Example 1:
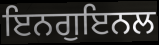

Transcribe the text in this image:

ਇਨਗੁਇਨਲ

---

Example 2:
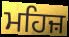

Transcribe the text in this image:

ਮਹਿਜ਼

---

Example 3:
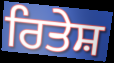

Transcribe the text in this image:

ਰਿਤੇਸ਼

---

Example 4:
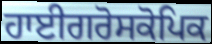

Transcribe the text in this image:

ਹਾਈਗਰੋਸਕੋਪਿਕ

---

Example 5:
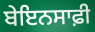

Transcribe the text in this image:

ਬੇਇਨਸਾਫ਼ੀ